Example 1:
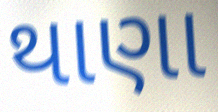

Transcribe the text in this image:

થાણા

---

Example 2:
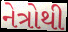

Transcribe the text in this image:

નેત્રોથી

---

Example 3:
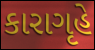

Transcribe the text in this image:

કારાગૃહે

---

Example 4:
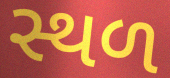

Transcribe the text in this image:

સ્થળ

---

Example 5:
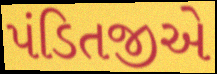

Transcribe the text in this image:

પંડિતજીએ